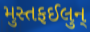
મુસ્તફઈલુન્